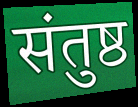
संतुष्ठ